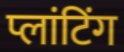
प्लांटिंग